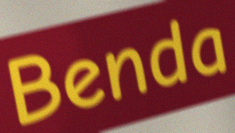
Benda